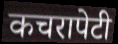
कचरापेटी